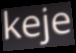
keje